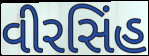
વીરસિંહ